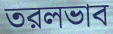
তরলভাব